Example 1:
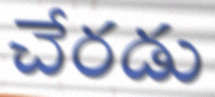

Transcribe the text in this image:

చేరడు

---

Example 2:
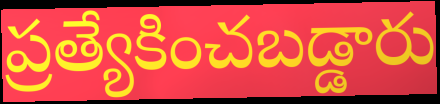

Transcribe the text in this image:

ప్రత్యేకించబడ్డారు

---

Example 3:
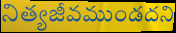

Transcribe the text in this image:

నిత్యజీవముండదని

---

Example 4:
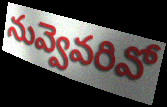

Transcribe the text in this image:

నువ్వెవరివో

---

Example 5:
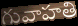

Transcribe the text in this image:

గువాహతి